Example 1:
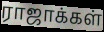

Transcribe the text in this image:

ராஜாக்கள்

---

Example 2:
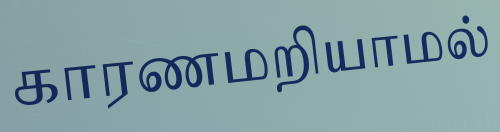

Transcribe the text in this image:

காரணமறியாமல்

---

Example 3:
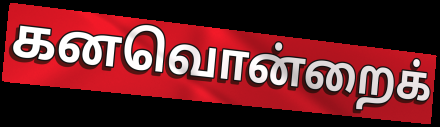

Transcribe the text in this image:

கனவொன்றைக்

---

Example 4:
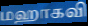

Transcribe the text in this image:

மஹாகவி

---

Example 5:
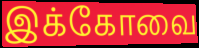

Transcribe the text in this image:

இக்கோவை